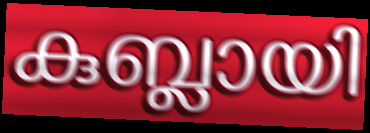
കുബ്ലായി